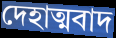
দেহাত্মবাদ